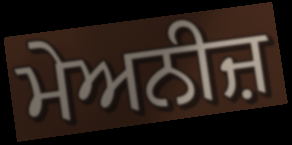
ਮੇਅਨੀਜ਼